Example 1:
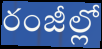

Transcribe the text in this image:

రంజీల్లో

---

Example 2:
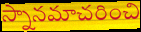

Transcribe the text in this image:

స్నానమాచరించి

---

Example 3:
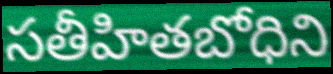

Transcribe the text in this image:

సతీహితబోధిని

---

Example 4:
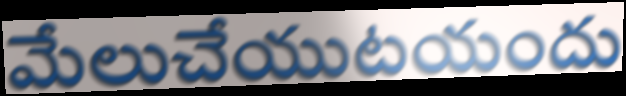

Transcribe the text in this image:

మేలుచేయుటయందు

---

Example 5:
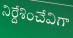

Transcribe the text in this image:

నిర్దేశించేవిగా